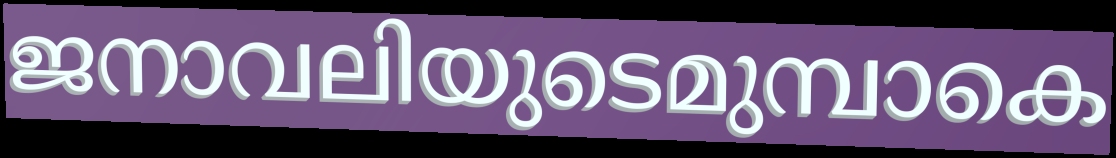
ജനാവലിയുടെമുമ്പാകെ